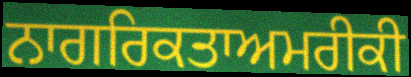
ਨਾਗਰਿਕਤਾਅਮਰੀਕੀ